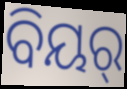
ବିୟର୍